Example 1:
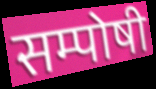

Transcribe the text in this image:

सम्पोषी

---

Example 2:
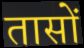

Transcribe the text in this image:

तासों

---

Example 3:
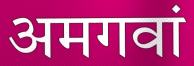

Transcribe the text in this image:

अमगवां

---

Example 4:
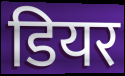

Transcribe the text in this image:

डियर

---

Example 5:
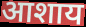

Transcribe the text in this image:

आशाय